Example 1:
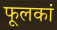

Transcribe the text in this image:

फूलकां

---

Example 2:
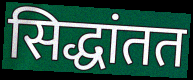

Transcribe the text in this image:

सिद्धांतत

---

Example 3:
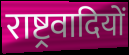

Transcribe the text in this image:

राष्ट्रवादियों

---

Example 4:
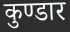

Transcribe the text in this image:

कुण्डार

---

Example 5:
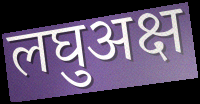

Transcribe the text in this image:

लघुअक्ष